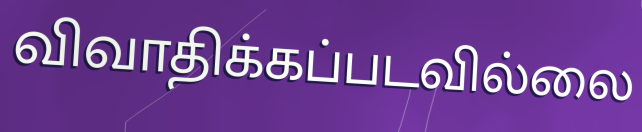
விவாதிக்கப்படவில்லை